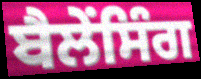
ਬੈਲੇਂਸਿੰਗ